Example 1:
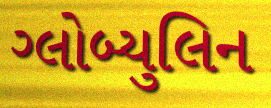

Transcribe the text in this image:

ગ્લોબ્યુલિન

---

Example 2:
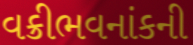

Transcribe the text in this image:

વક્રીભવનાંકની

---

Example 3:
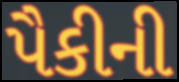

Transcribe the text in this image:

પૈકીની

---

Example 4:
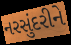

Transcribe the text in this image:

નરસુંદરીને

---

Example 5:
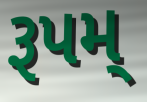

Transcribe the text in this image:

રૂપમ્